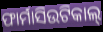
ଫାର୍ମାସିଉଟିକାଲ୍